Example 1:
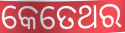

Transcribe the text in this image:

କେତେଥର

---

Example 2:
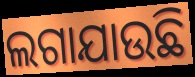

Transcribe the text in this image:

ଲଗାଯାଉଛି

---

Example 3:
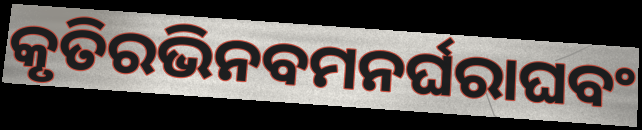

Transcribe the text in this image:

କୃତିରଭିନବମନର୍ଘରାଘବଂ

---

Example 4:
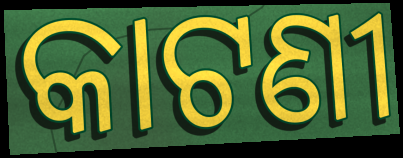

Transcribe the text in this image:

କାଟଣୀ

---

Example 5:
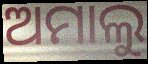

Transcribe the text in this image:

ଅମାଲୁ